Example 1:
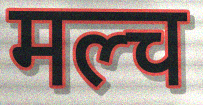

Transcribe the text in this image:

मल्च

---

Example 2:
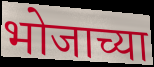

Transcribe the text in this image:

भोजाच्या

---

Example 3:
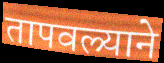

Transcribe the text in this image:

तापवल्याने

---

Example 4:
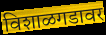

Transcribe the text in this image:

विशाळगडावर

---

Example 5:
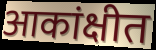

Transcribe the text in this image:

आकांक्षीत